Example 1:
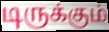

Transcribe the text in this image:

டிருக்கும்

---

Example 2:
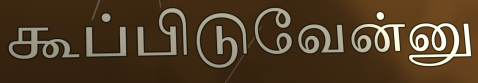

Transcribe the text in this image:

கூப்பிடுவேன்னு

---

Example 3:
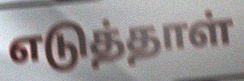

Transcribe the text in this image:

எடுத்தாள்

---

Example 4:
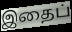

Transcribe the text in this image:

இதைப்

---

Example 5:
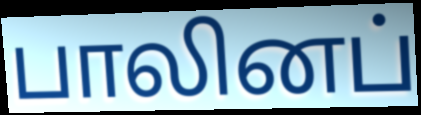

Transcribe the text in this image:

பாலினப்